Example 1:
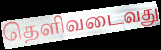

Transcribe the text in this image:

தெளிவடைவது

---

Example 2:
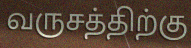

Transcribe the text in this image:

வருசத்திற்கு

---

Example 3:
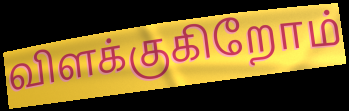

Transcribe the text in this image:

விளக்குகிறோம்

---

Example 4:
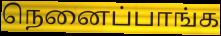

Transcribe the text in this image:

நெனைப்பாங்க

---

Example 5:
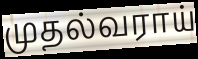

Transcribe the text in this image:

முதல்வராய்